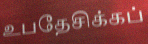
உபதேசிக்கப்